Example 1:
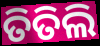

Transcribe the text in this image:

ତିତିଲି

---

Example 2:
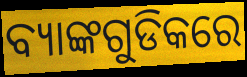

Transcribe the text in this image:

ବ୍ୟାଙ୍କଗୁଡିକରେ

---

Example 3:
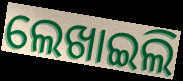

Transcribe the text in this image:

ଲେଖାଇଲି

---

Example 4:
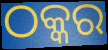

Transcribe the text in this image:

ଠକ୍କର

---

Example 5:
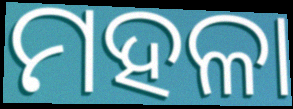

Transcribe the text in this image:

ମହଳା